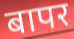
बापर